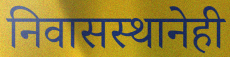
निवासस्थानेही